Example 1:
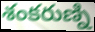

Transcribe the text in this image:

శంకరుణ్ని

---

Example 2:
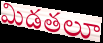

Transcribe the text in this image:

మిడతలూ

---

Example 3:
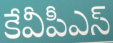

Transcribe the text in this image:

కేవీపీఎస్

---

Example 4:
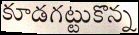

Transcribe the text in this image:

కూడగట్టుకొన్న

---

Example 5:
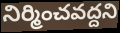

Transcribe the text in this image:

నిర్మించవద్దని